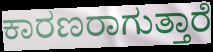
ಕಾರಣರಾಗುತ್ತಾರೆ